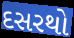
દસરથો